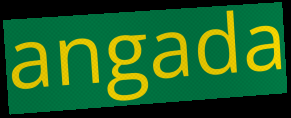
angada